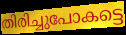
തിരിച്ചുപോകട്ടെ